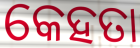
କେହତା